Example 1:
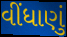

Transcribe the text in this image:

વીંધાણું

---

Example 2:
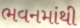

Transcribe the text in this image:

ભવનમાંથી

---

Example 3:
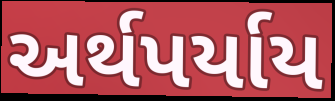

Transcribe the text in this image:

અર્થપર્યાય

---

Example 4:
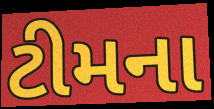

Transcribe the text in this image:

ટીમના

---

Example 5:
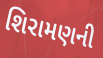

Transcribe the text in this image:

શિરામણની